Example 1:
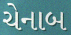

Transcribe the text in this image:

ચેનાબ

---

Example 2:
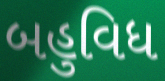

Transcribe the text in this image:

બહુવિધ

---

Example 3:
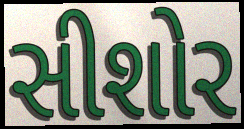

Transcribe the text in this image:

સીશોર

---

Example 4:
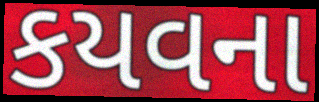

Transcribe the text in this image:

કયવના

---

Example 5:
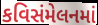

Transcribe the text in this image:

કવિસંમેલનમાં